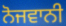
ਨੋਜਵਾਨੀ